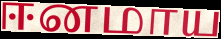
ஈனமாய